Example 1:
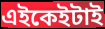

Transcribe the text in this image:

এইকেইটাই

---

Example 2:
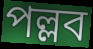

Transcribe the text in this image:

পল্লব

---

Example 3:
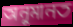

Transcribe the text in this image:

অনুমানত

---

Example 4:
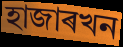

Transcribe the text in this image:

হাজাৰখন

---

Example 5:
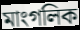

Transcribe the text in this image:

মাংগলিক